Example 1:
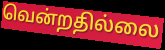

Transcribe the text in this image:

வென்றதில்லை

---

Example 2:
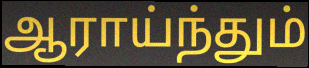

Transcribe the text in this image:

ஆராய்ந்தும்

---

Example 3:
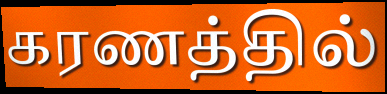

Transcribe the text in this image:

கரணத்தில்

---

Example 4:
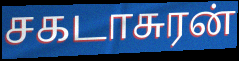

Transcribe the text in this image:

சகடாசுரன்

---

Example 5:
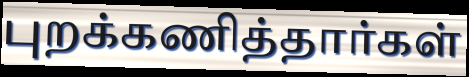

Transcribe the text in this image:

புறக்கணித்தார்கள்